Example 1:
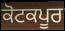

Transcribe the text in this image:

ਕੋਟਕਪੂਰ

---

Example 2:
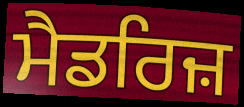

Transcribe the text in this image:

ਮੈਡਰਿਜ਼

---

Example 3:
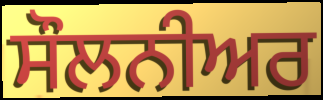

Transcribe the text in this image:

ਸੌਲਨੀਅਰ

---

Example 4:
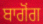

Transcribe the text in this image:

ਬਾਗੋਂਗ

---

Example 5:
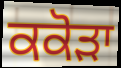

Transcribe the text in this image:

ਕਕੋੜਾ